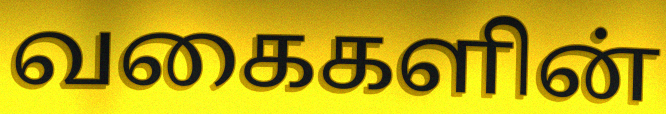
வகைகளின்